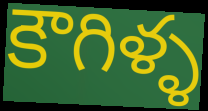
కౌగిళ్ళ